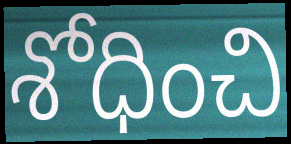
శోధించి